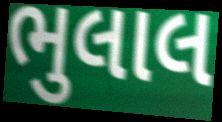
ભુલાલ